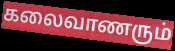
கலைவாணரும்